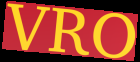
VRO